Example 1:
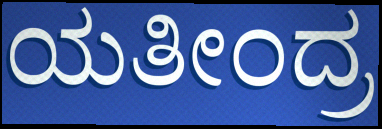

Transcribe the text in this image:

ಯತೀಂದ್ರ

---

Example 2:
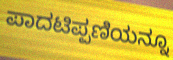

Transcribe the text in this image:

ಪಾದಟಿಪ್ಪಣಿಯನ್ನೂ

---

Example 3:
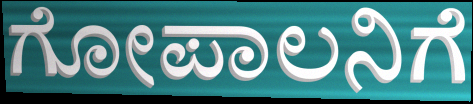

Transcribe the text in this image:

ಗೋಪಾಲನಿಗೆ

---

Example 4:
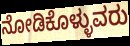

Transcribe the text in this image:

ನೋಡಿಕೊಳ್ಳುವರು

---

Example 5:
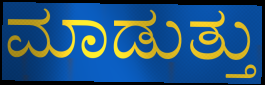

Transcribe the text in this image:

ಮಾಡುತ್ತು